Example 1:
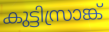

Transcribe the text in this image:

കുട്ടിസ്രാങ്ക്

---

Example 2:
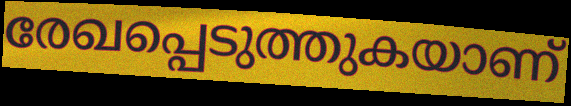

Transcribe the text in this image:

രേഖപ്പെടുത്തുകയാണ്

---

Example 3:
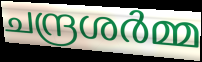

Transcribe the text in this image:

ചന്ദ്രശർമ്മ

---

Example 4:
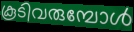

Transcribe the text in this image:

കൂടിവരുമ്പോൾ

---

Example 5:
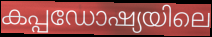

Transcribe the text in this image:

കപ്പഡോഷ്യയിലെ